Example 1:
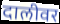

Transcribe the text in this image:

दालीवर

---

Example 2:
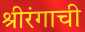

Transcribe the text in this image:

श्रीरंगाची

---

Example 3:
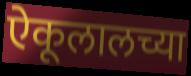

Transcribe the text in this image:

ऐकूलालच्या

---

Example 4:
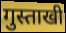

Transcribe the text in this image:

गुस्ताखी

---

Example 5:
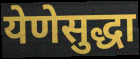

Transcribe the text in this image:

येणेसुद्धा